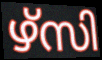
ഴ്സി